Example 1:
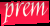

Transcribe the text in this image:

prem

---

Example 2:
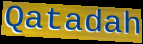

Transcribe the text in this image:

Qatadah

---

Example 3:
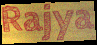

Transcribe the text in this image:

Rajya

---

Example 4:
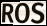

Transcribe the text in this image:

ROS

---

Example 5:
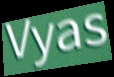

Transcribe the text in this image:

Vyas